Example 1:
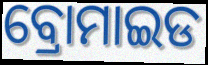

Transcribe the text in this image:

ବ୍ରୋମାଇଡ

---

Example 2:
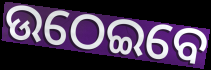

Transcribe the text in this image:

ଉଠେଇବେ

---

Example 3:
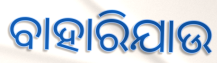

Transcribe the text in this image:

ବାହାରିଯାଉ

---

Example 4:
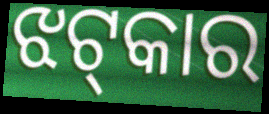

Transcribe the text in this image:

ଝଟ୍‍କାର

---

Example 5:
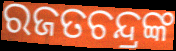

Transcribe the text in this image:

ରଜତଚନ୍ଦ୍ରଙ୍କ